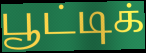
பூட்டிக்